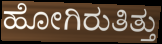
ಹೋಗಿರುತಿತ್ತು